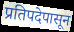
प्रतिपदेपासून